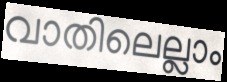
വാതിലെല്ലാം